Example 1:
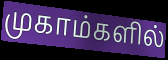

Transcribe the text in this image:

முகாம்களில்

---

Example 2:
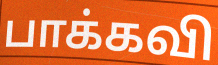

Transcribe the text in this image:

பாக்கவி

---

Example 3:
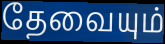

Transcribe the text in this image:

தேவையும்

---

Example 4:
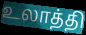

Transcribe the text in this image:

உலாத்தி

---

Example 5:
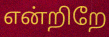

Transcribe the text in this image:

என்றிறே